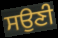
ਸਉਣੀ